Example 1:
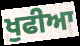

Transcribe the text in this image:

ਖੁਫੀਆ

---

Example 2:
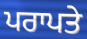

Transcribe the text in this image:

ਪਰਾਪਤੇ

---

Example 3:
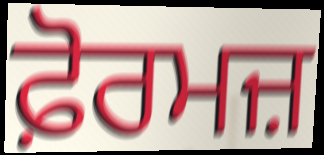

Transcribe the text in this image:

ਫ਼ੋਰਮਜ਼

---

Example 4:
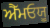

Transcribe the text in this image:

ਐੱਮਓਯੂ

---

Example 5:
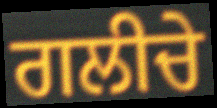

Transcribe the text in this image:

ਗਲੀਚੇ